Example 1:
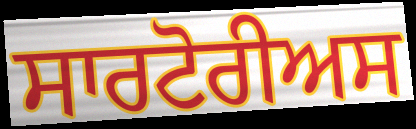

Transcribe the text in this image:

ਸਾਰਟੋਰੀਅਸ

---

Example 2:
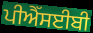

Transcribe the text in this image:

ਪੀਐੱਸਈਬੀ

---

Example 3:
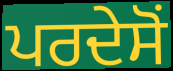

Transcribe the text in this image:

ਪਰਦੇਸੋਂ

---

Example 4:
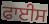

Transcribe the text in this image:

ਫਾਈਸ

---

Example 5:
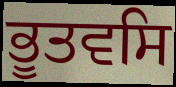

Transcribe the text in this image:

ਭੂਤਵਸਿ